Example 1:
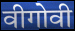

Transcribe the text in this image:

वीगोवी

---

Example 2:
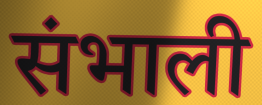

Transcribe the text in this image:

संभाली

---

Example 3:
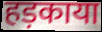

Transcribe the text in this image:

हड़काया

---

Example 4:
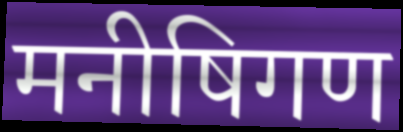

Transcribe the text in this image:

मनीषिगण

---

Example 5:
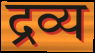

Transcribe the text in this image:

द्रव्य